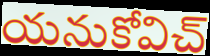
యనుకోవిచ్